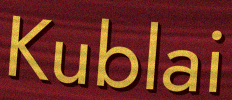
Kublai